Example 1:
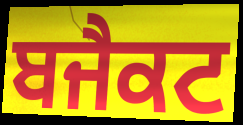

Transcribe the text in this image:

ਬਜੈਕਟ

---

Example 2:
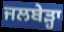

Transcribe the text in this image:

ਜਲਬੇੜ੍ਹਾ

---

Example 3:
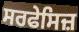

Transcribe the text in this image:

ਸਰਫੇਸਿਜ਼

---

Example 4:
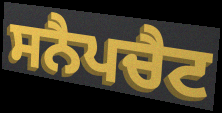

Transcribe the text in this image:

ਸਨੈਪਚੈਟ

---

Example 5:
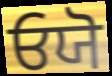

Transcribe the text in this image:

ਓਯੋ